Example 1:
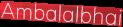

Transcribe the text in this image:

Ambalalbhai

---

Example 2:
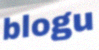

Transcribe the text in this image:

blogu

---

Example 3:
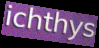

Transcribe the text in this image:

ichthys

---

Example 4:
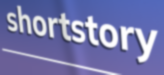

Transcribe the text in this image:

shortstory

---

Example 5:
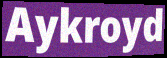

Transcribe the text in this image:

Aykroyd